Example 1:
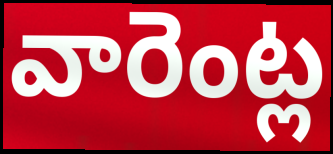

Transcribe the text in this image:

వారెంట్ల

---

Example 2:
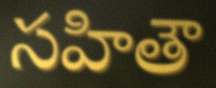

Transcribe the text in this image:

సహితౌ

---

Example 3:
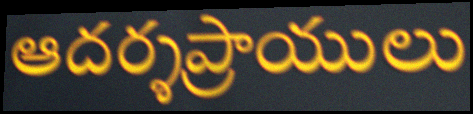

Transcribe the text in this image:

ఆదర్శప్రాయులు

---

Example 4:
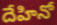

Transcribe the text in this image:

దేహినో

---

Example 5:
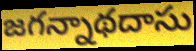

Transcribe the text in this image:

జగన్నాథదాసు